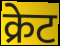
क्रेट